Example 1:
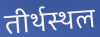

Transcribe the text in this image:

तीर्थस्थल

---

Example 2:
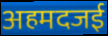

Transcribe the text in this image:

अहमदजई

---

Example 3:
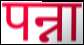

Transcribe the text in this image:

पन्ना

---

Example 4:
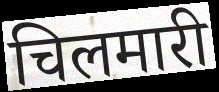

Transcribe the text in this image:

चिलमारी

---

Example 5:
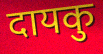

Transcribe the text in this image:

दायकु